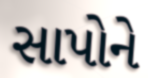
સાપોને